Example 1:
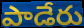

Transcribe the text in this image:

పాడేరు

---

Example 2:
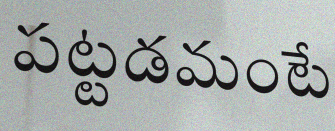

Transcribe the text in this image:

పట్టడమంటే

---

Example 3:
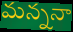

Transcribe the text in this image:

మన్ననా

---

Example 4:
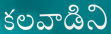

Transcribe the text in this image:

కలవాడిని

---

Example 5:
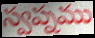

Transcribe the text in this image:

స్వప్నము